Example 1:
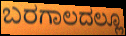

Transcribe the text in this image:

ಬರಗಾಲದಲ್ಲೂ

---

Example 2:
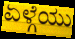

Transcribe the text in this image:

ಏಳ್ಗೆಯು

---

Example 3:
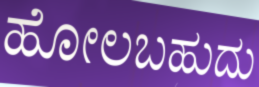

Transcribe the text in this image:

ಹೋಲಬಹುದು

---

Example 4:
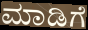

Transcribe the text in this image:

ಮಾಡಿಗೆ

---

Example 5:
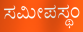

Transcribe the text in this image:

ಸಮೀಪಸ್ಥಂ